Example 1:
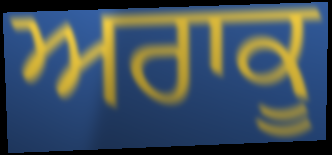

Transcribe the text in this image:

ਅਰਾਕੂ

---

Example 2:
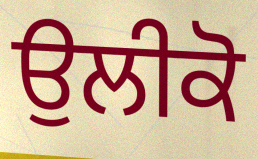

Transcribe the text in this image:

ਉਲੀਕੋ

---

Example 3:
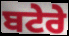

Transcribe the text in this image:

ਬਟੇਰੇ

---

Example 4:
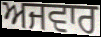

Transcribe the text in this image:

ਅਜਵਾਰ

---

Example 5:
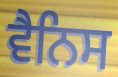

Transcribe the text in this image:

ਵੈਨਿਸ